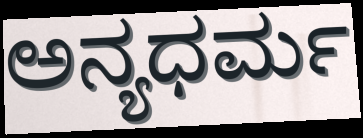
ಅನ್ಯಧರ್ಮ